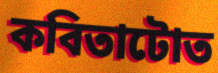
কবিতাটোত